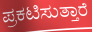
ಪ್ರಕಟಿಸುತ್ತಾರೆ